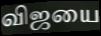
விஜயை